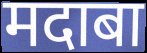
मदाबा